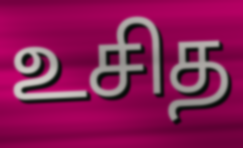
உசித